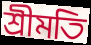
শ্রীমতি